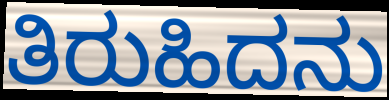
ತಿರುಹಿದನು